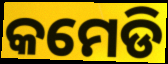
କମେଡି